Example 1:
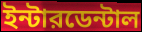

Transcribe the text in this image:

ইন্টারডেন্টাল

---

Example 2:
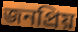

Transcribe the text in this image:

জনপ্রিয়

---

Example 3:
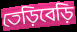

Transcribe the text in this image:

তেড়িবেড়ি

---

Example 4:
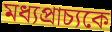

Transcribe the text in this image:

মধ্যপ্রাচ্যকে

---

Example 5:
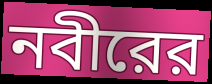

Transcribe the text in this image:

নবীরের